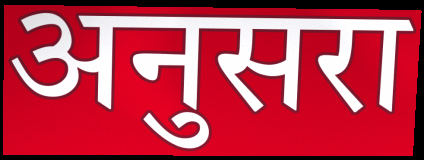
अनुसरा